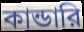
কান্ডারি